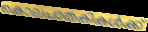
കൊലപാതകികൾക്ക്